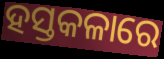
ହସ୍ତକଳାରେ